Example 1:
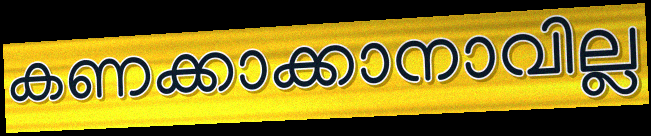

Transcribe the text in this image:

കണക്കാക്കാനാവില്ല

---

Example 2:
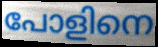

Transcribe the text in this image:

പോളിനെ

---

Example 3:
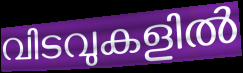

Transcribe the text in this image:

വിടവുകളിൽ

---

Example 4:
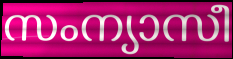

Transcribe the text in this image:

സംന്യാസീ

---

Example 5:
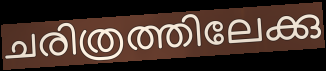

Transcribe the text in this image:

ചരിത്രത്തിലേക്കു